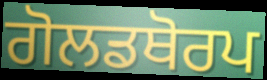
ਗੋਲਡਥੋਰਪ